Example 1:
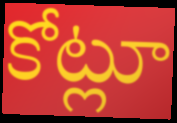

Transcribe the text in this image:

కోట్లూ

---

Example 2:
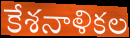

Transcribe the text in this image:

కేశనాళికల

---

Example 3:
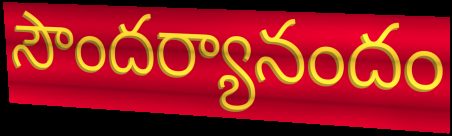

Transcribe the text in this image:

సౌందర్యానందం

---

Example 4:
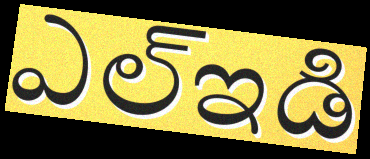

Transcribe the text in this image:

ఎల్ఇడి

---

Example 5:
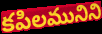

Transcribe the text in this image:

కపిలమునిని